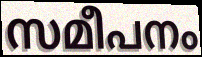
സമീപനം